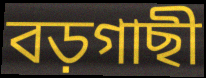
বড়গাছী